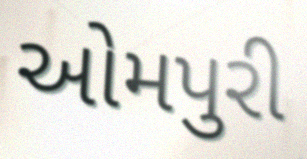
ઓમપુરી